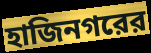
হাজিনগরের